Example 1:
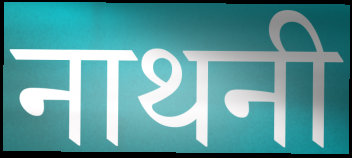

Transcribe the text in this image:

नाथनी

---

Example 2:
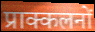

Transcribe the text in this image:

प्राक्कलनों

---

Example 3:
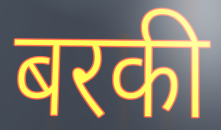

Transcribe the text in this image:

बरकी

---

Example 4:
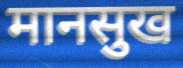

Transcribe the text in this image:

मानसुख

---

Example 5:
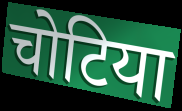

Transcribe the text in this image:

चोटिया